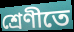
শ্রেণীতে